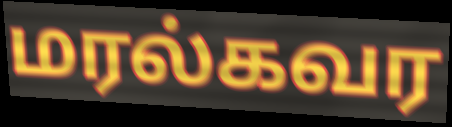
மரல்கவர